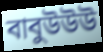
বাবুউউউ